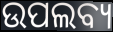
ଉପଲବ୍ୟ